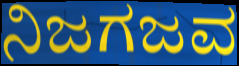
ನಿಜಗಜವ